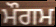
ਮੌਗਮ